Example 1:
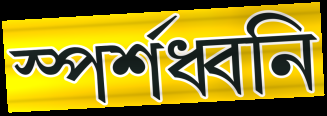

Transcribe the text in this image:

স্পৰ্শধ্বনি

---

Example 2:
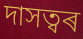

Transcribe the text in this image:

দাসত্বৰ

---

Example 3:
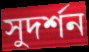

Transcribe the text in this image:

সুদৰ্শন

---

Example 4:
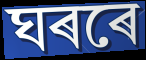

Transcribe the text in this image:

ঘৰৰে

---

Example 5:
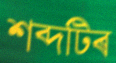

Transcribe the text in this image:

শব্দটিৰ